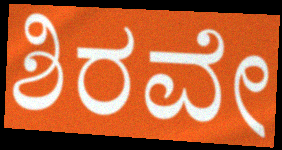
ಶಿರವೇ